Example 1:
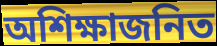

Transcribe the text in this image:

অশিক্ষাজনিত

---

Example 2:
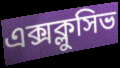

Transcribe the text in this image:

এক্সক্লুসিভ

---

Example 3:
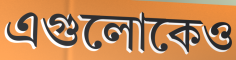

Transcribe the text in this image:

এগুলোকেও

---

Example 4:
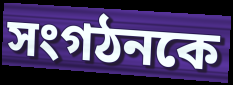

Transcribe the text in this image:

সংগঠনকে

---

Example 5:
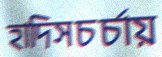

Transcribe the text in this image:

হাদিসচর্চায়